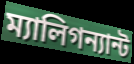
ম্যালিগন্যান্ট